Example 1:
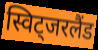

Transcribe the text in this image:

स्विट्जरलैंड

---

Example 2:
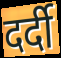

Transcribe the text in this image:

दर्दी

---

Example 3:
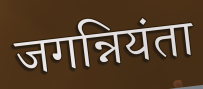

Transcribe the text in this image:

जगन्नियंता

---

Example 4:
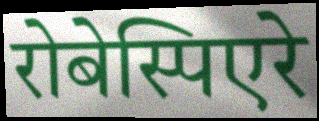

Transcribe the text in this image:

रोबेस्पिएरे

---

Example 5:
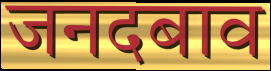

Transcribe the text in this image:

जनदबाव